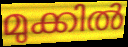
മുക്കിൽ